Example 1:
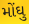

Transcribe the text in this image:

મોંઘુ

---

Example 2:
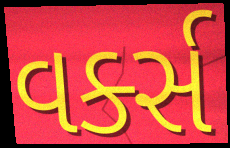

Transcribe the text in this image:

વર્ક્સ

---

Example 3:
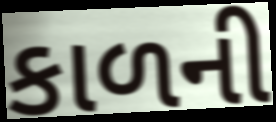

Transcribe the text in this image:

કાળની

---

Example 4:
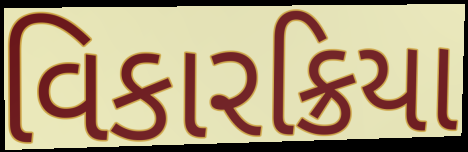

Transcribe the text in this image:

વિકારક્રિયા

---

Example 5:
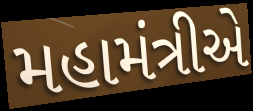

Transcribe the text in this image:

મહામંત્રીએ